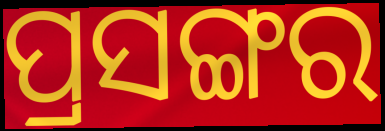
ପ୍ରସଙ୍ଗର